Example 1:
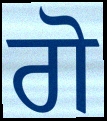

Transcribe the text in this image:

ਗੋ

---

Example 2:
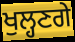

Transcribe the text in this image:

ਖੁਲ੍ਹਣਗੇ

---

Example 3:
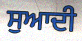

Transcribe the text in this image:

ਸੁਆਦੀ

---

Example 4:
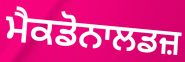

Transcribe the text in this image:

ਮੈਕਡੋਨਾਲਡਜ਼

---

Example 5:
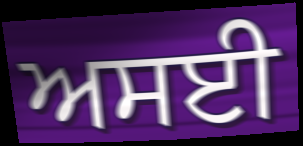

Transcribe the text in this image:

ਅਸਈ